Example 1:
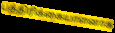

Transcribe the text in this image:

பத்திரிக்கையாளனாக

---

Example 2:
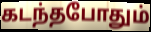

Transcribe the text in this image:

கடந்தபோதும்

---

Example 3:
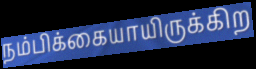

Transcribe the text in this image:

நம்பிக்கையாயிருக்கிற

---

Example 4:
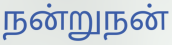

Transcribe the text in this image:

நன்றுநன்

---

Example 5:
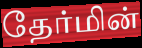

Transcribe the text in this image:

தேர்மின்